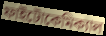
ফাইটোকেমিক্যাল